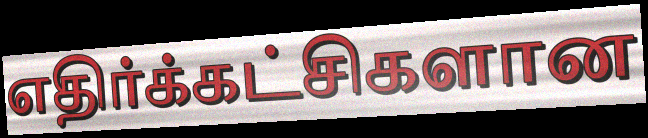
எதிர்க்கட்சிகளான